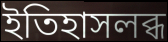
ইতিহাসলব্ধ